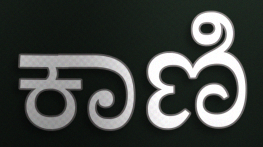
ಕಾಣಿ